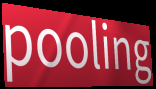
pooling